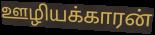
ஊழியக்காரன்